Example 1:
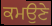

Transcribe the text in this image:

ਕਮਉਣੇ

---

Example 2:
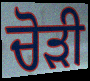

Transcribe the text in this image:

ਚੋੜੀ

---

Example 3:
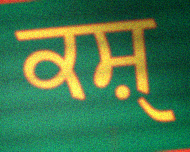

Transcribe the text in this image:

ਕਸ਼ੑ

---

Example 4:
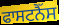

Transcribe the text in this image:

ਫਾਸਟਨੈੱਸ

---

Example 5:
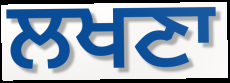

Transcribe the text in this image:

ਲਖਣਾ